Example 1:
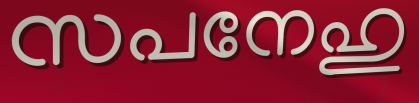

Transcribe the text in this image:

സപനേഹു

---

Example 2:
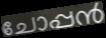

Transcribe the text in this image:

ചോപ്പൻ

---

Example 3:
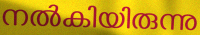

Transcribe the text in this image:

നൽകിയിരുന്നു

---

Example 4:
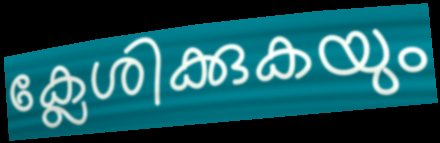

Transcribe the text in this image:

ക്ലേശിക്കുകയും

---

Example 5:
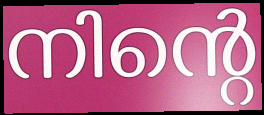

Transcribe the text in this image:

നിന്റെ